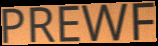
PREWF